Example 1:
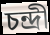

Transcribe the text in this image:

চন্দ্রী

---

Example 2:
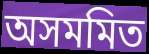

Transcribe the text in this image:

অসমমিত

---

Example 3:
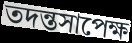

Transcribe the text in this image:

তদন্তসাপেক্ষ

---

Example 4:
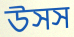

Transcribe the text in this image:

উসস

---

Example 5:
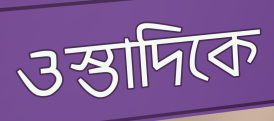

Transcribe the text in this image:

ওস্তাদিকে